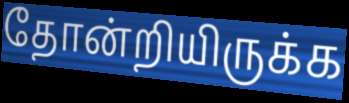
தோன்றியிருக்க